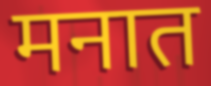
मनात